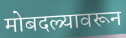
मोबदल्यावरून